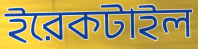
ইরেকটাইল